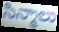
సిన్మాలు